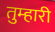
तुम्हारी